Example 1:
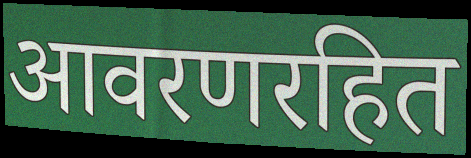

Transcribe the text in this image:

आवरणरहित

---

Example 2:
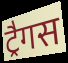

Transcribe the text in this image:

ट्रैगस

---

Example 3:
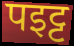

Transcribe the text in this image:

पइट्ट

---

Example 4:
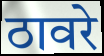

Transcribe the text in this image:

ठावरे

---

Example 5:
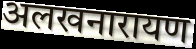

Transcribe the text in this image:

अलखनारायण